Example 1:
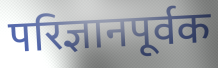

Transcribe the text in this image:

परिज्ञानपूर्वक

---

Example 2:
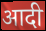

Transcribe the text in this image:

आदी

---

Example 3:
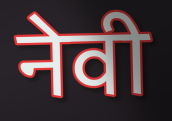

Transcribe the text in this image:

नेवी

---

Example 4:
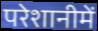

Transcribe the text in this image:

परेशानीमें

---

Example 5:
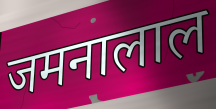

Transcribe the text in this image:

जमनालाल